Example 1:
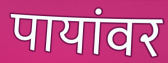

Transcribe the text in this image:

पायांवर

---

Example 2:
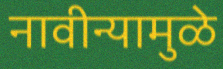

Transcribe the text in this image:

नावीन्यामुळे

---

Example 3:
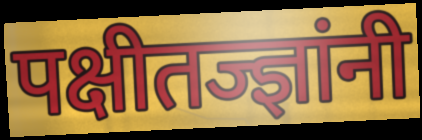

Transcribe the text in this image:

पक्षीतज्ज्ञांनी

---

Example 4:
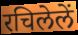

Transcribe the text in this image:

रचिलेलें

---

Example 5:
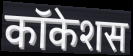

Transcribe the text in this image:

कॉकेशस